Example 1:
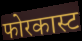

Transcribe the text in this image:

फोरकास्ट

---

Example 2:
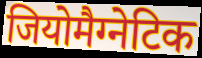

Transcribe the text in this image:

जियोमैग्नेटिक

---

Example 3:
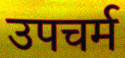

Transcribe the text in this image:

उपचर्म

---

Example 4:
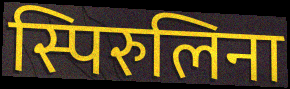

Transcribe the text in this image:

स्पिरुलिना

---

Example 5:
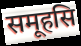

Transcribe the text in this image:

समूहसि